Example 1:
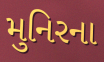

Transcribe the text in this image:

મુનિરના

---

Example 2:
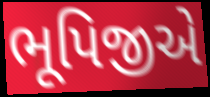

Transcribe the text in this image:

ભૂપિજીએ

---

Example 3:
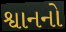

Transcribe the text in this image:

શ્વાનનો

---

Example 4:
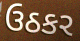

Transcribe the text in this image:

ઉઠકર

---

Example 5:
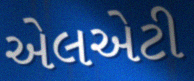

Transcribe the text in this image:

એલએટી